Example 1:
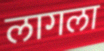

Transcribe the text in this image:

लागला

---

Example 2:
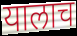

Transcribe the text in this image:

यालाच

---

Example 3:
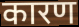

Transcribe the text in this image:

कारण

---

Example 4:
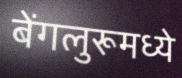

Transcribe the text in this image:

बेंगलुरूमध्ये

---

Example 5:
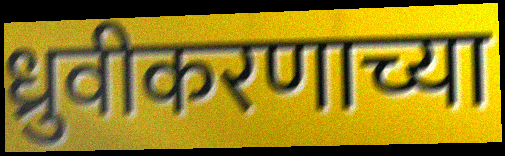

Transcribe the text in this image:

ध्रुवीकरणाच्या